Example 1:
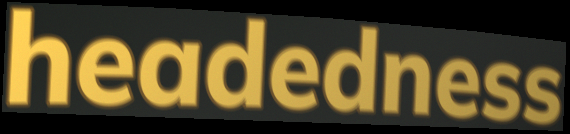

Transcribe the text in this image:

headedness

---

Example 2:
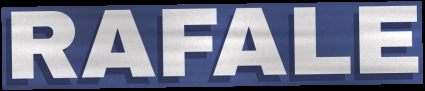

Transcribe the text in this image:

RAFALE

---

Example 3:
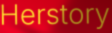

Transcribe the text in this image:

Herstory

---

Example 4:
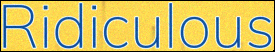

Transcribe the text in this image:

Ridiculous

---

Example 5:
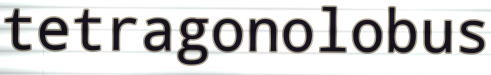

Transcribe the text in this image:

tetragonolobus